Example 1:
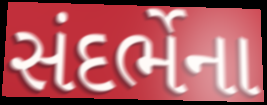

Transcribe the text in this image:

સંદર્ભેના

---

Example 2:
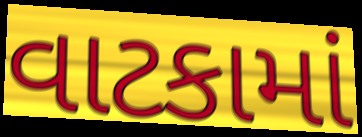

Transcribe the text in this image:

વાટકામાં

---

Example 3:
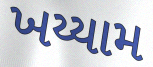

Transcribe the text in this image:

ખય્યામ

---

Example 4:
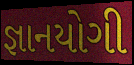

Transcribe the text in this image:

જ્ઞાનયોગી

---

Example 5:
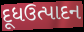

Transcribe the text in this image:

દૂધઉત્પાદન